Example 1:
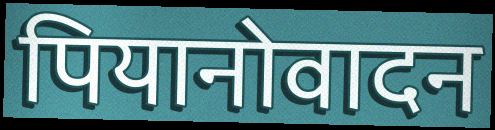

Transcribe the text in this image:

पियानोवादन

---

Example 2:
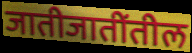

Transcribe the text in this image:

जातीजातींतील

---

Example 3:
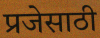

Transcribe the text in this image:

प्रजेसाठी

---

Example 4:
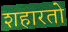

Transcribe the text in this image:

शहारतो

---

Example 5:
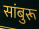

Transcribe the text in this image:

सांबुरू